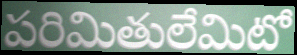
పరిమితులేమిటో